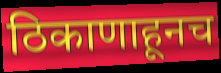
ठिकाणाहूनच